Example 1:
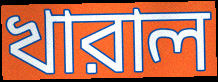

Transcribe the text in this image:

খারাল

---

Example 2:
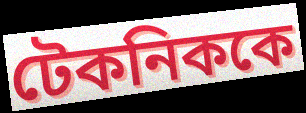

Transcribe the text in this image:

টেকনিককে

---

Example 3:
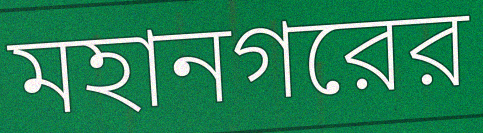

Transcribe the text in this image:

মহানগরের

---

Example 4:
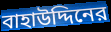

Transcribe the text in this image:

বাহাউদ্দিনের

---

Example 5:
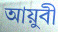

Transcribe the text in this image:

আয়ুবী